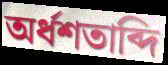
অর্ধশতাব্দি